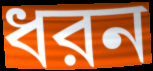
ধরন